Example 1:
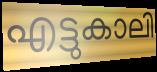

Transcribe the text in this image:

എട്ടുകാലി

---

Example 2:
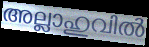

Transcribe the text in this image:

അല്ലാഹുവിൽ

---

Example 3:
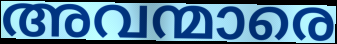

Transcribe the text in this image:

അവന്മാരെ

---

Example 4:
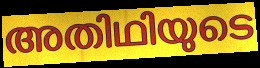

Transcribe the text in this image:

അതിഥിയുടെ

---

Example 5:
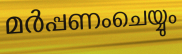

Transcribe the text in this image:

മർപ്പണംചെയ്യും